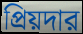
প্রিয়দার